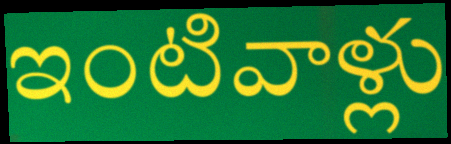
ఇంటివాళ్లు